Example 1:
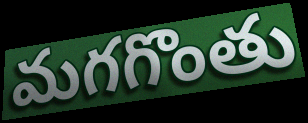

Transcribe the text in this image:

మగగొంతు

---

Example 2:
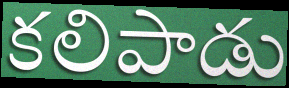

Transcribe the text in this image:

కలిపాడు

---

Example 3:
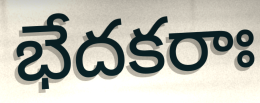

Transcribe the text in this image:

భేదకరాః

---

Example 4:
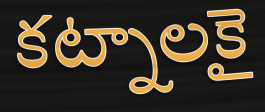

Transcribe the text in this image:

కట్నాలకై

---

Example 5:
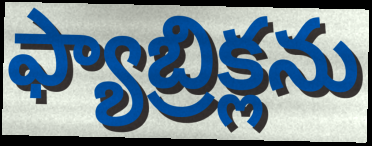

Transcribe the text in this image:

ఫ్యాబ్రిక్లను